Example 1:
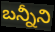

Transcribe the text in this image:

బన్నీని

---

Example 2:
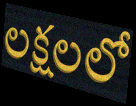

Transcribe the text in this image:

లక్షలలో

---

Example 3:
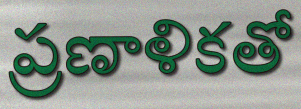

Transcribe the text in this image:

ప్రణాళికతో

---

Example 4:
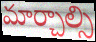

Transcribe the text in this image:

మార్చాల్సి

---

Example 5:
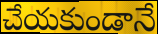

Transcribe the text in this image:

చేయకుండానే